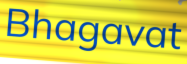
Bhagavat